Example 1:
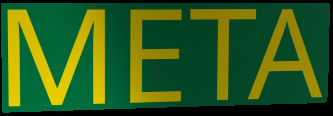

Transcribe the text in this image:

META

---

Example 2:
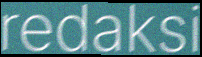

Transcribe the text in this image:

redaksi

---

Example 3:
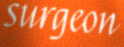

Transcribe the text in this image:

surgeon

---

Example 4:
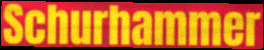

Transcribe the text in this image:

Schurhammer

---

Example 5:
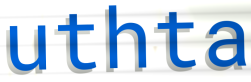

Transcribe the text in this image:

uthta